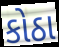
કોઠા